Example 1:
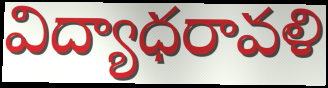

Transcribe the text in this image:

విద్యాధరావళి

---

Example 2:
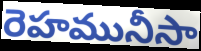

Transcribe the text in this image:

రెహమునీసా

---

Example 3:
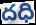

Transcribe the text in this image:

దధి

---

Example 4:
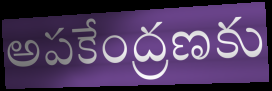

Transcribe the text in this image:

అపకేంద్రణకు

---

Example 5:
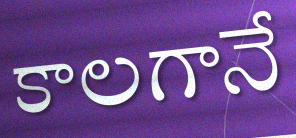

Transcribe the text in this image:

కాలగానే